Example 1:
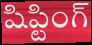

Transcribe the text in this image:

షిప్టింగ్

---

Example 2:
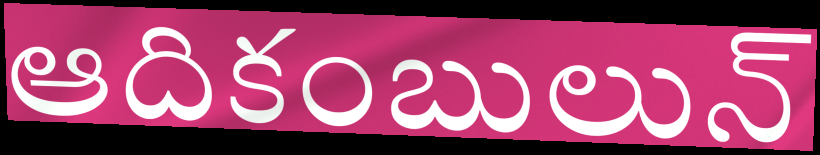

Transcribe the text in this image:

ఆదికంబులున్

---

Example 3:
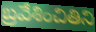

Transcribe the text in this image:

బ్రవేశించితిని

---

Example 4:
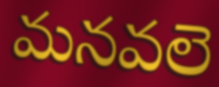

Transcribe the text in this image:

మనవలె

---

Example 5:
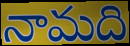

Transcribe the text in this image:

నామది